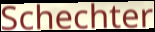
Schechter